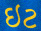
ઇટ